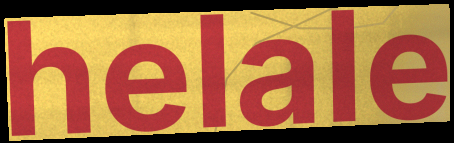
helale